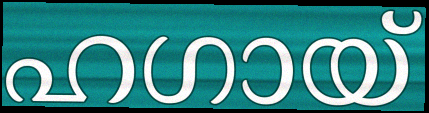
ഹഗായ്